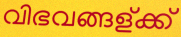
വിഭവങ്ങള്ക്ക്